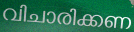
വിചാരിക്കണ